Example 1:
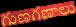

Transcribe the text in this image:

గుణగణాలు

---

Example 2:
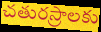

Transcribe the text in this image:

చతురస్రాలకు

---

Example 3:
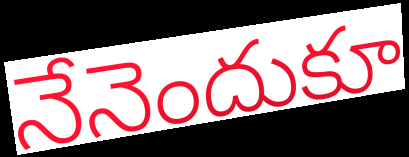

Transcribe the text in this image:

నేనెందుకూ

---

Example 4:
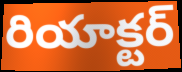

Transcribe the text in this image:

రియాక్టర్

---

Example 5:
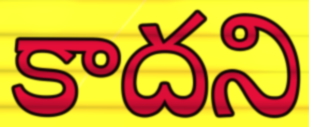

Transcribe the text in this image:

కాదని